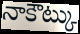
నాకౌట్కు